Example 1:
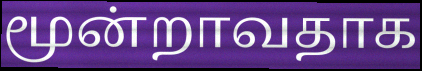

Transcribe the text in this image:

மூன்றாவதாக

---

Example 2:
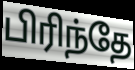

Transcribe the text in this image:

பிரிந்தே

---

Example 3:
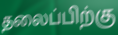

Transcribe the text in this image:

தலைப்பிற்கு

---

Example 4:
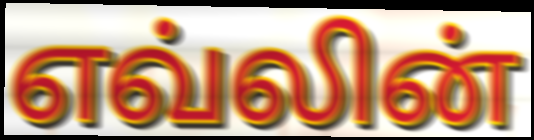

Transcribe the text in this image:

எவ்லின்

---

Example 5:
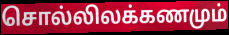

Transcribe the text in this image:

சொல்லிலக்கணமும்